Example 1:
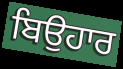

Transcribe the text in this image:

ਬਿਉਹਾਰ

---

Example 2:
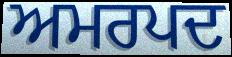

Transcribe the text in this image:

ਅਮਰਪਦ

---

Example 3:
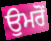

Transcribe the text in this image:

ਉਮਰੋਂ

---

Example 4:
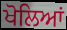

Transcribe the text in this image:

ਖੋਲਿਆਂ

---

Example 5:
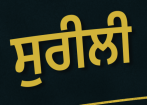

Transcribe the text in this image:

ਸੁਰੀਲੀ